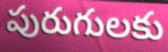
పురుగులకు